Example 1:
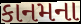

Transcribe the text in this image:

કાનમના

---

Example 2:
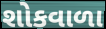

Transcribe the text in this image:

શોકવાળા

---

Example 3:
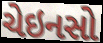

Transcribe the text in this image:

ચેઇનસો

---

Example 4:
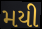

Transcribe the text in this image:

મયી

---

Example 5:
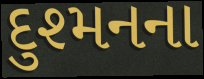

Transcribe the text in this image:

દુશ્મનના